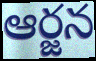
ఆర్జన